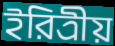
ইরিত্রীয়